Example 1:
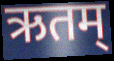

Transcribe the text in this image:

ऋतम्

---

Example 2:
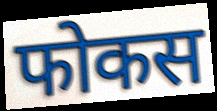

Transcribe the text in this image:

फोकस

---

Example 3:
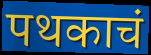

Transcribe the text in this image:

पथकाचं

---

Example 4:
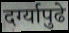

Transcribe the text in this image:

दर्ग्यापुढे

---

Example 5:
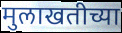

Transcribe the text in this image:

मुलाखतीच्या